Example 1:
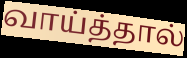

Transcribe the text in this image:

வாய்த்தால்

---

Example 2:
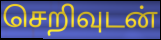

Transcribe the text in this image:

செறிவுடன்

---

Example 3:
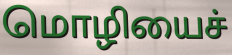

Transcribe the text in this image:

மொழியைச்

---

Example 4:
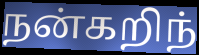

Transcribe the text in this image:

நன்கறிந்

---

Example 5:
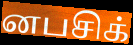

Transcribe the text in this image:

னபசிக்